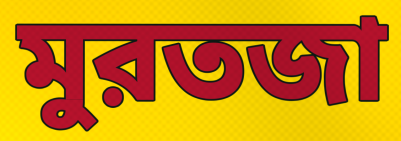
মুরতজা